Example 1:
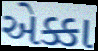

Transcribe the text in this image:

એક્કા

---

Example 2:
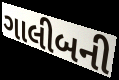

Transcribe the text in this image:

ગાલીબની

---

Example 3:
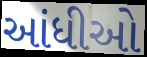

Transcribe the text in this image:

આંધીઓ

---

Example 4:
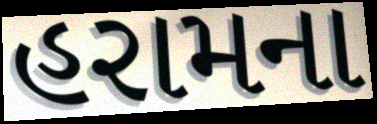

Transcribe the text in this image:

હરામના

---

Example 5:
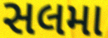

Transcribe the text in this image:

સલમા